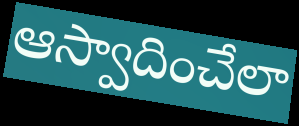
ఆస్వాదించేలా